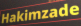
Hakimzade